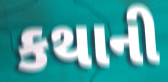
કથાની